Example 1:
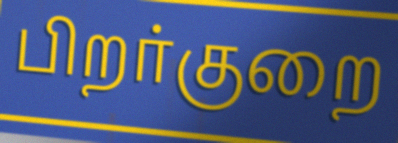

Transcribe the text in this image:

பிறர்குறை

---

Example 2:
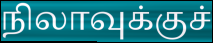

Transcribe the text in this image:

நிலாவுக்குச்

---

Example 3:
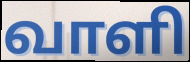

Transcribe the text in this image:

வாளி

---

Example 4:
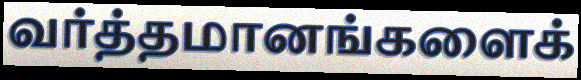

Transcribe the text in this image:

வர்த்தமானங்களைக்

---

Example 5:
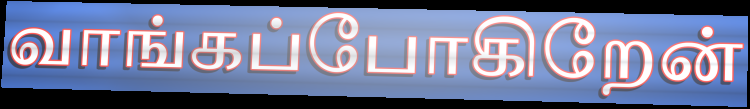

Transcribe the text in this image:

வாங்கப்போகிறேன்